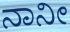
ನಾನೀ